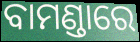
ବାମଣ୍ଡାରେ